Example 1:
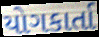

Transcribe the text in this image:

યોગકાર્તા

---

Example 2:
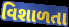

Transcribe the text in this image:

વિશાળતા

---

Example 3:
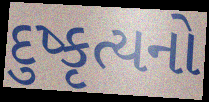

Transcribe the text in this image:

દુષ્કૃત્યનો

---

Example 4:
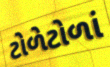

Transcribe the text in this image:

ટોળેટોળાં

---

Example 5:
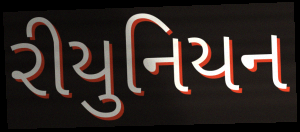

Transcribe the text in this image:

રીયુનિયન